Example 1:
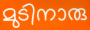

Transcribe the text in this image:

മുടിനാരു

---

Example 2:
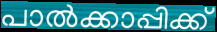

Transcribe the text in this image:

പാൽക്കാപ്പിക്ക്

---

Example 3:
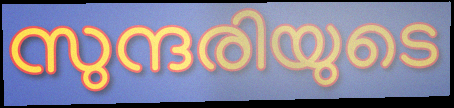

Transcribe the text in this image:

സുന്ദരിയുടെ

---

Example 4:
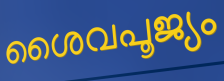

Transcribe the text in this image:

ശൈവപൂജ്യം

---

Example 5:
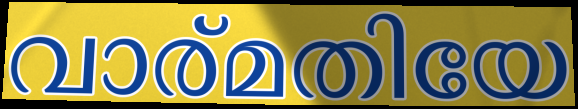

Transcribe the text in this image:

വാര്മതിയേ